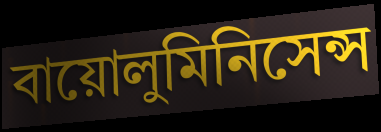
বায়োলুমিনিসেন্স